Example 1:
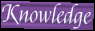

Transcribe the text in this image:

Knowledge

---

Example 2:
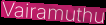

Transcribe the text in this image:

Vairamuthu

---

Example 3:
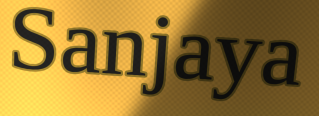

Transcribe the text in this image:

Sanjaya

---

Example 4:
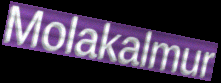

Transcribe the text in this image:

Molakalmur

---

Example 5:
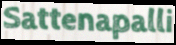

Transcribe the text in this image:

Sattenapalli